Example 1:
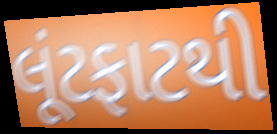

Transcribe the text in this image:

લૂંટફાટથી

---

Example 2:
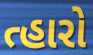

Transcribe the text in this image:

ત્હારો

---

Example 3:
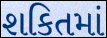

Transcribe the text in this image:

શકિતમાં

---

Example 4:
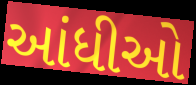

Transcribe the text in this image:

આંધીઓ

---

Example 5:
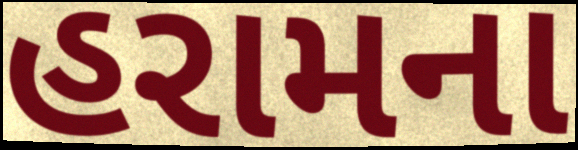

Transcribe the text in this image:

હરામના